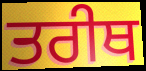
ਤਰੀਥ